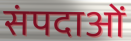
संपदाओं